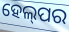
ହେଲ୍‌ପର